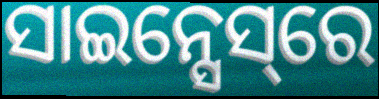
ସାଇନ୍ସେସ୍‌ରେ